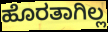
ಹೊರತಾಗಿಲ್ಲ